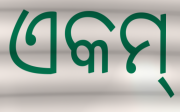
ଏକମ୍